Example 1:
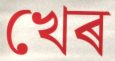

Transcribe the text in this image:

খেৰ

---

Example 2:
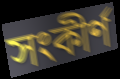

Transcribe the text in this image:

সংকীৰ্ণ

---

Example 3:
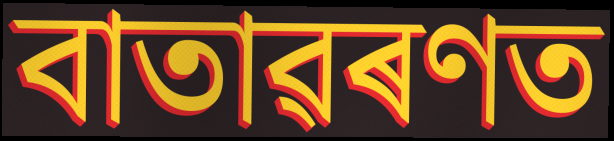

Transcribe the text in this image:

বাতাৱৰণত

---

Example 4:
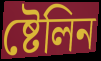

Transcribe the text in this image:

ষ্টেলিন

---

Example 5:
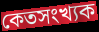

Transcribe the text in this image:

কেতসংখ্যক